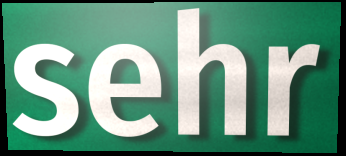
sehr